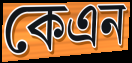
কেএন